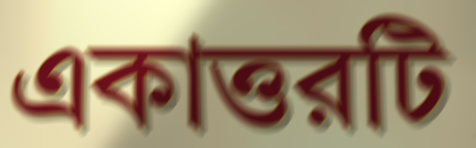
একাত্তরটি